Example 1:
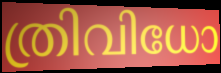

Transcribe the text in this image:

ത്രിവിധോ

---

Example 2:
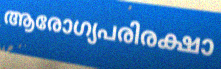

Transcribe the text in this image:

ആരോഗ്യപരിരക്ഷാ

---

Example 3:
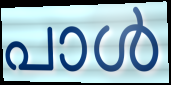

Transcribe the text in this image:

പാൾ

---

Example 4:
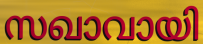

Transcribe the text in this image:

സഖാവായി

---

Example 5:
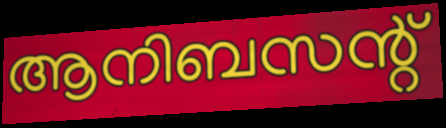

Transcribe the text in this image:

ആനിബസന്റ്